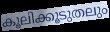
കൂലിക്കൂടുതലും